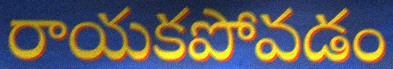
రాయకపోవడం